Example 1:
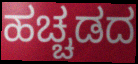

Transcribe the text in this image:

ಹಚ್ಚಡದ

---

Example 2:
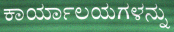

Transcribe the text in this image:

ಕಾರ್ಯಾಲಯಗಳನ್ನು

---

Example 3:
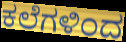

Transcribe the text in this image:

ಕಲೆಗಳಿಂದ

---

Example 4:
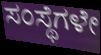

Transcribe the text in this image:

ಸಂಸ್ಥೆಗಳೇ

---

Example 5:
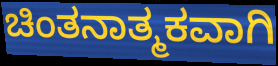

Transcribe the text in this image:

ಚಿಂತನಾತ್ಮಕವಾಗಿ